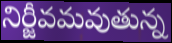
నిర్జీవమవుతున్న